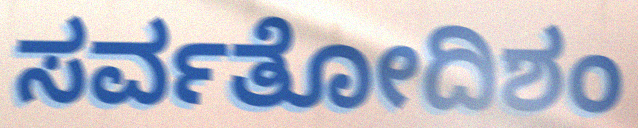
ಸರ್ವತೋದಿಶಂ